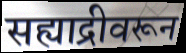
सह्याद्रीवरून